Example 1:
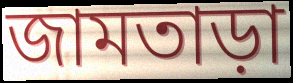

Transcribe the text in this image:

জামতাড়া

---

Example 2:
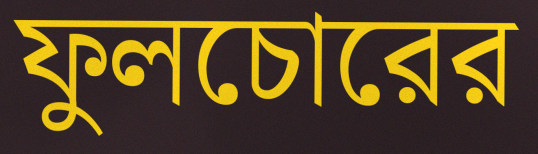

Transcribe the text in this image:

ফুলচোরের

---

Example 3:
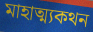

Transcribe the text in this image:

মাহাত্ম্যকথন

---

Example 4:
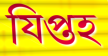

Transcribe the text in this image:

যিপ্তহ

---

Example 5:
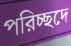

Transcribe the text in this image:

পরিচ্ছদে